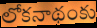
లోకనాథంకు